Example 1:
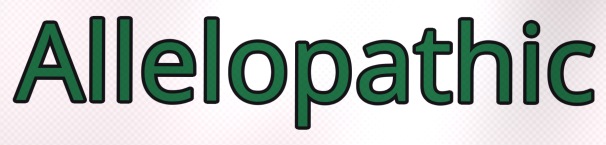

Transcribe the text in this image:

Allelopathic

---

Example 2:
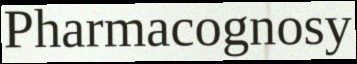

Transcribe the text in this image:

Pharmacognosy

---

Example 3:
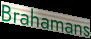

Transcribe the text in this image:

Brahamans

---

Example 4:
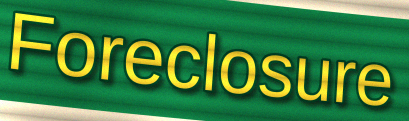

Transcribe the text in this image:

Foreclosure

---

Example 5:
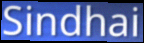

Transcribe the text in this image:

Sindhai